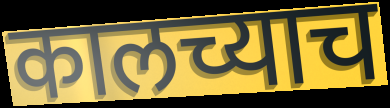
कालच्याच